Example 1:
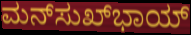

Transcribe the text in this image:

ಮನ್‌ಸುಖ್‌ಭಾಯ್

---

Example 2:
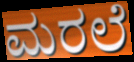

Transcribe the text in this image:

ಮರಲೆ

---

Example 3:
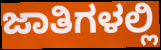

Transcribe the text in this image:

ಜಾತಿಗಳಲ್ಲಿ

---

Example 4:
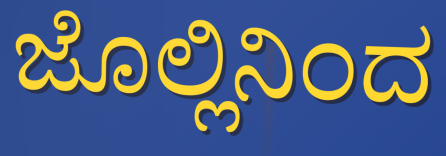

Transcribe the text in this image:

ಜೊಲ್ಲಿನಿಂದ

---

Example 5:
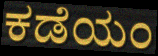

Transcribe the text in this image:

ಕಡೆಯಂ